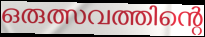
ഒരുത്സവത്തിന്റെ